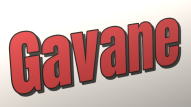
Gavane